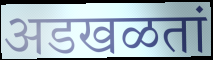
अडखळतां